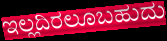
ಇಲ್ಲದಿರಲೂಬಹುದು